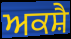
ਅਕਸ਼ੈ